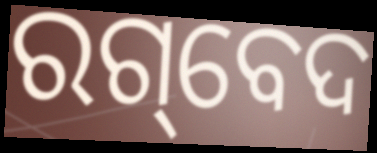
ରଗ୍‌ବେଦ